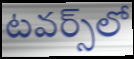
టవర్స్‌లో